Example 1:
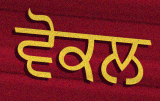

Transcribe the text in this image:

ਵੋਕਲ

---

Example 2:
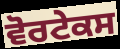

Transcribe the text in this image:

ਵੋਰਟੇਕਸ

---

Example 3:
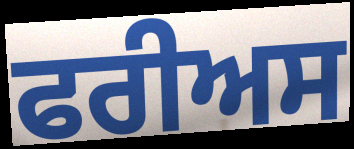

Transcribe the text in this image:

ਫਰੀਅਸ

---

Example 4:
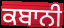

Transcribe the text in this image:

ਕਬਾਨੀ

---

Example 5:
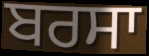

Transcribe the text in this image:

ਬਰਸਾ